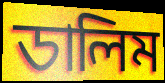
ডালিম